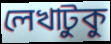
লেখাটুকু